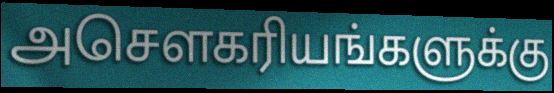
அசௌகரியங்களுக்கு